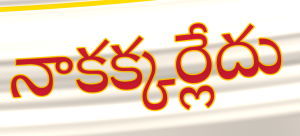
నాకక్కర్లేదు